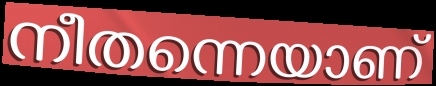
നീതന്നെയാണ്